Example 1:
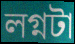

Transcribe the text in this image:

লগ্নটা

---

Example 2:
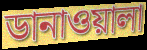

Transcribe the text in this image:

ডানাওয়ালা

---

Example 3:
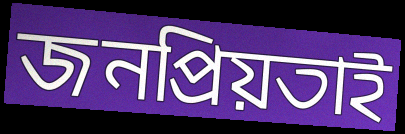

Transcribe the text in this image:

জনপ্রিয়তাই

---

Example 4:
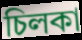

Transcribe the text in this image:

চিলকা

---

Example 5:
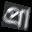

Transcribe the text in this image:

প্রা